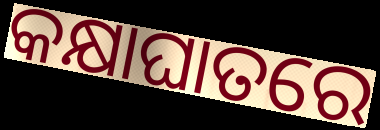
କକ୍ଷାଘାତରେ